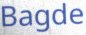
Bagde